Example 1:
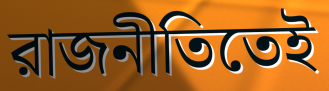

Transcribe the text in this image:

রাজনীতিতেই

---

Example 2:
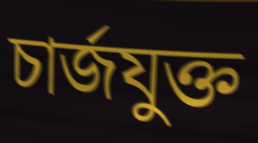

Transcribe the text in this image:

চার্জযুক্ত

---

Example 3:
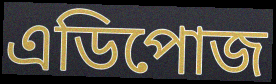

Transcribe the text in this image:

এডিপোজ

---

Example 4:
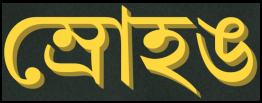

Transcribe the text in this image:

ম্রোহঙ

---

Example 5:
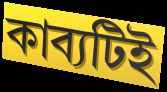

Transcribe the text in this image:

কাব্যটিই